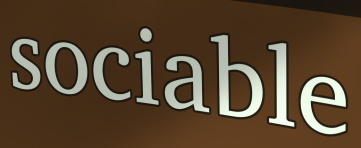
sociable